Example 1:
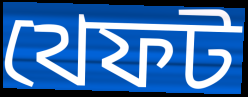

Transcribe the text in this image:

থেফট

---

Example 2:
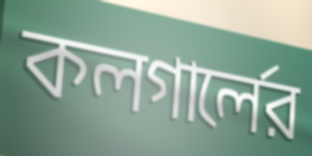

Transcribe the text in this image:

কলগার্লের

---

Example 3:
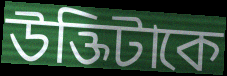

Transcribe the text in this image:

উক্তিটাকে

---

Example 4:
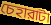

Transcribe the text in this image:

চেহারাটা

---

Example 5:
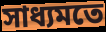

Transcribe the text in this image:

সাধ্যমতে